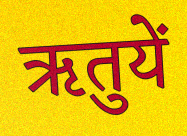
ऋतुयें